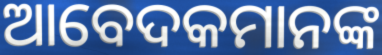
ଆବେଦକମାନଙ୍କ